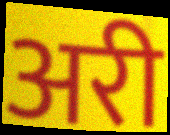
अरी